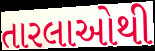
તારલાઓથી